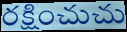
రక్షించుచు